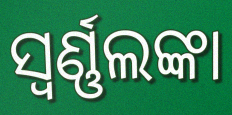
ସ୍ବର୍ଣ୍ଣଲଙ୍କା